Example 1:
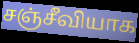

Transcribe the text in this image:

சஞ்சீவியாக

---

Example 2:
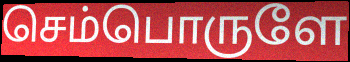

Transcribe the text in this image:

செம்பொருளே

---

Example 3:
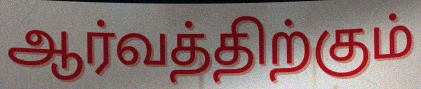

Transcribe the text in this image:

ஆர்வத்திற்கும்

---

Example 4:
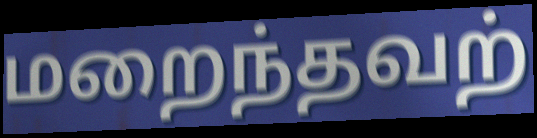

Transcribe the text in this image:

மறைந்தவற்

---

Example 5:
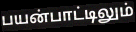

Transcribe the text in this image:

பயன்பாட்டிலும்